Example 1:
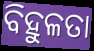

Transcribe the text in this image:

ବିହୁଳତା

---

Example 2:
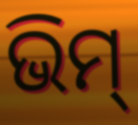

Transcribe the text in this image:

ଭିମ୍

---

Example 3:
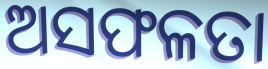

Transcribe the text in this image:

ଅସଫଳତା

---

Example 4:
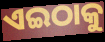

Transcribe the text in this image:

ଏଇଠାକୁ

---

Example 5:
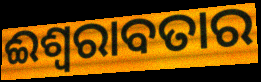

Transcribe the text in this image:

ଈଶ୍ୱରାବତାର